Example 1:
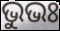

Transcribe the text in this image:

ଭୁଭଃ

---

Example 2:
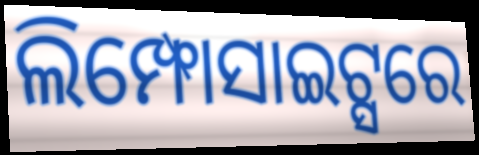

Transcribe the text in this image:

ଲିମ୍ଫୋସାଇଟ୍ସରେ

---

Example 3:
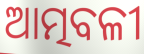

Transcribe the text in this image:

ଆତ୍ମବଳୀ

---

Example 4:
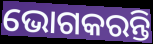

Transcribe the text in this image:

ଭୋଗକରନ୍ତି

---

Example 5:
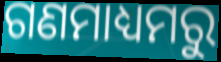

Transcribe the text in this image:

ଗଣମାଧ୍ୟମରୁ